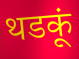
थडकूं